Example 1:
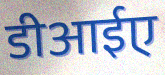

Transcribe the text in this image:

डीआईए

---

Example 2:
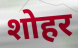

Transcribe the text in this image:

शोहर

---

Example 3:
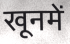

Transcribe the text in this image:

खूनमें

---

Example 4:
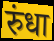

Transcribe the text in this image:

रुंधा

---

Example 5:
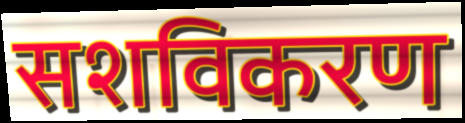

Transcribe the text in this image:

सशविकरण